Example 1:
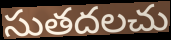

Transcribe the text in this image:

సుతదలచు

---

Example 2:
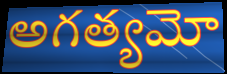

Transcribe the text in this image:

అగత్యమో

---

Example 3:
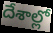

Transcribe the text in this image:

దేశాల్లో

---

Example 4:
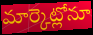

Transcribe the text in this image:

మార్కెట్లోనూ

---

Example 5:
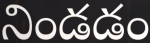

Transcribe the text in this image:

నిండడం